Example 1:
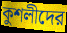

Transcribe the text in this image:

কুশলীদের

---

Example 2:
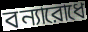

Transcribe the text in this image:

বন্যারোধে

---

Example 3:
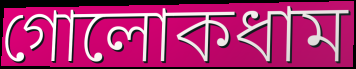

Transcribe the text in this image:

গোলোকধাম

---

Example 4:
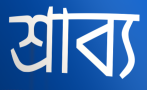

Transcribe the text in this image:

শ্রাব্য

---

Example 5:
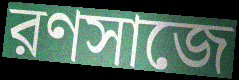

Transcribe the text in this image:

রণসাজে